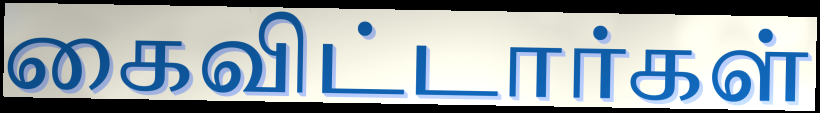
கைவிட்டார்கள்